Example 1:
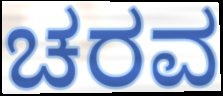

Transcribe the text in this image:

ಚರವ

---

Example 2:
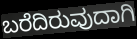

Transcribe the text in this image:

ಬರೆದಿರುವುದಾಗಿ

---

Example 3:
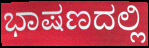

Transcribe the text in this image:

ಭಾಷಣದಲ್ಲಿ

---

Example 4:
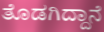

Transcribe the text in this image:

ತೊಡಗಿದ್ದಾನೆ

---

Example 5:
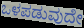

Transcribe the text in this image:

ಒಳಪಡುವುದೇ